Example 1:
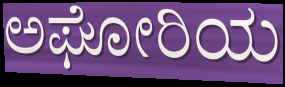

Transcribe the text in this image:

ಅಘೋರಿಯ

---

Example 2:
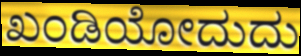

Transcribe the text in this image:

ಖಂಡಿಯೋದುದು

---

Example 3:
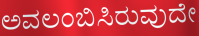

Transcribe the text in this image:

ಅವಲಂಬಿಸಿರುವುದೇ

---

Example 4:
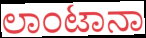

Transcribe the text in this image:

ಲಾಂಟಾನಾ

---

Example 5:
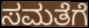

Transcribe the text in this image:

ಸಮತೆಗೆ